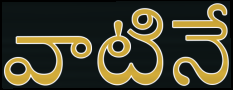
వాటినే